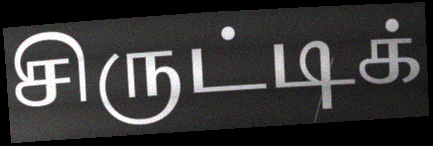
சிருட்டிக்